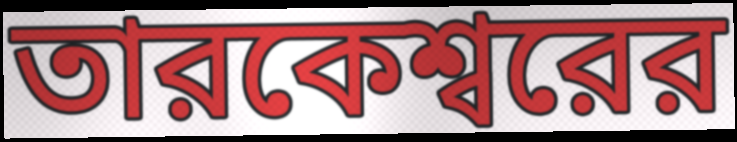
তারকেশ্বরের